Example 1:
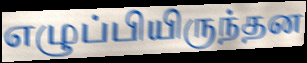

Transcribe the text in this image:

எழுப்பியிருந்தன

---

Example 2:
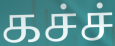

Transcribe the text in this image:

கச்ச்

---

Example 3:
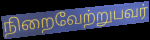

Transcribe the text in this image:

நிறைவேற்றுபவர்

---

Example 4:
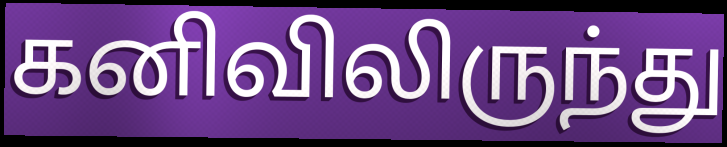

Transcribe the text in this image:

கனிவிலிருந்து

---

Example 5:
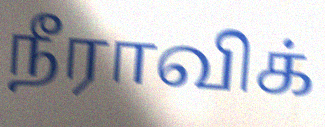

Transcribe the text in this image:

நீராவிக்